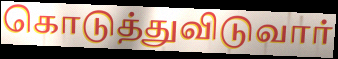
கொடுத்துவிடுவார்